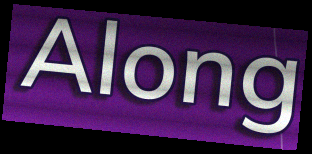
Along